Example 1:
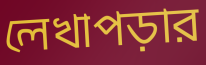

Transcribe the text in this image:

লেখাপড়ার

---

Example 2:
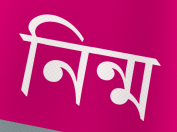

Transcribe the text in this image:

নিন্ম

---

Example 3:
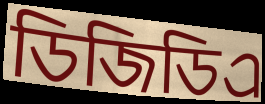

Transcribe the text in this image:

ডিজিডিএ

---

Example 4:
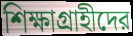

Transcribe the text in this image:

শিক্ষাগ্রাহীদের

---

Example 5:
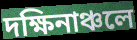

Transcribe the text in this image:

দক্ষিনাঞ্চলে